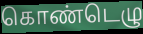
கொண்டெழு